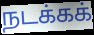
நடக்கக்